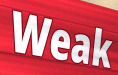
Weak